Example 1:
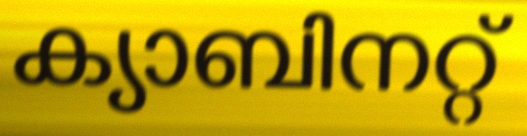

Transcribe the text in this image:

ക്യാബിനറ്റ്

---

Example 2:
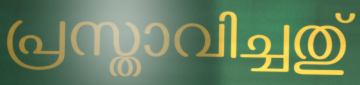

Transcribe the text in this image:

പ്രസ്താവിച്ചതു്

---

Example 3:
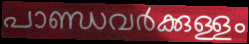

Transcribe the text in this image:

പാണ്ഡവർക്കുള്ളം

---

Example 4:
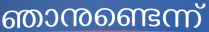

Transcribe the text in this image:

ഞാനുണ്ടെന്ന്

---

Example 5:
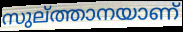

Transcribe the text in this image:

സുല്ത്താനയാണ്